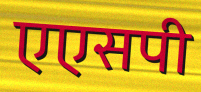
एएसपी